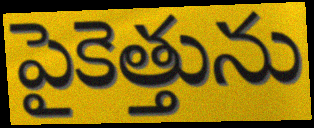
పైకెత్తును